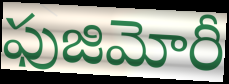
ఫుజిమోరీ